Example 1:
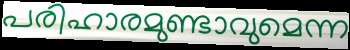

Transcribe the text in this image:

പരിഹാരമുണ്ടാവുമെന്ന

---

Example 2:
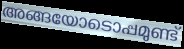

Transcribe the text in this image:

അങ്ങയോടൊപ്പമുണ്ട്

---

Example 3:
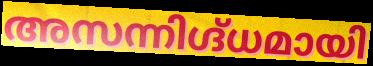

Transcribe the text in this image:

അസന്നിഗ്ദ്ധമായി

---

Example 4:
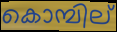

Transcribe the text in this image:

കൊമ്പില്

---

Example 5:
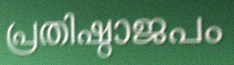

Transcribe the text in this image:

പ്രതിഷ്ഠാജപം